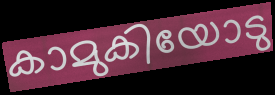
കാമുകിയോടു